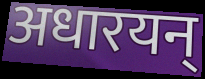
अधारयन्